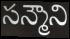
సన్మౌని